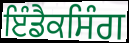
ਇੰਡੈਕਸਿੰਗ